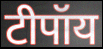
टीपॉय